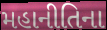
મહાનીતિના